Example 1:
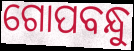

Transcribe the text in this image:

ଗୋପବନ୍ଧୁ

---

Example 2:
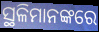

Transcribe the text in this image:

ସ୍ଥଳିମାନଙ୍କରେ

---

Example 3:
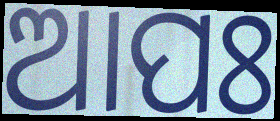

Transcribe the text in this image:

ଆପଃ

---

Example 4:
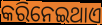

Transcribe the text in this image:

କରିନେଇଥାଏ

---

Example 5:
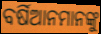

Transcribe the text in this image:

ବର୍ଷିଆନମାନଙ୍କୁ